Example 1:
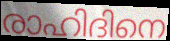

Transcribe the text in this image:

രാഹിദിനെ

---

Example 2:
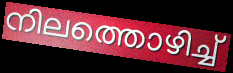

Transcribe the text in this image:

നിലത്തൊഴിച്ച്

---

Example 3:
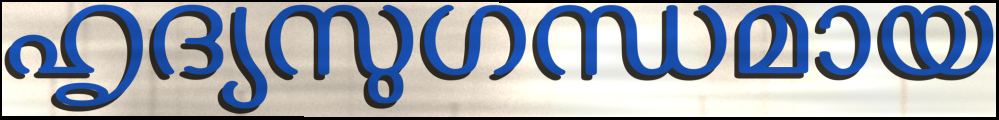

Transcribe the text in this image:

ഹൃദ്യസുഗന്ധമായ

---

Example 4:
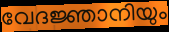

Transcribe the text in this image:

വേദജ്ഞാനിയും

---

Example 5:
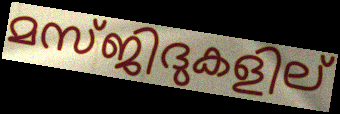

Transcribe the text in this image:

മസ്ജിദുകളില്